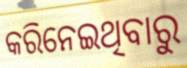
କରିନେଇଥିବାରୁ